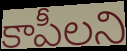
కాపీలని